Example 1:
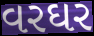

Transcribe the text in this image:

વરઘર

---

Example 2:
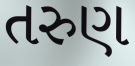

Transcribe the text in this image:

તરુણ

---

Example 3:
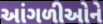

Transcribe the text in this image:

આંગળીઓને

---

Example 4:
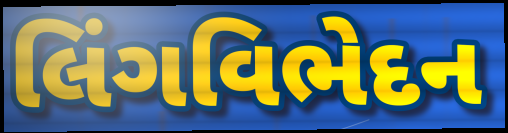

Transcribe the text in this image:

લિંગવિભેદન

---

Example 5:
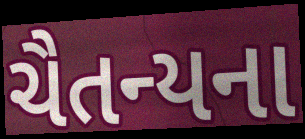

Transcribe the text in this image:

ચૈતન્યના